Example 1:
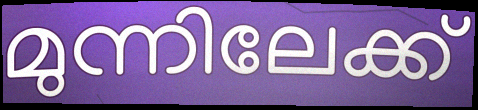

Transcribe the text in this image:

മുന്നിലേക്ക്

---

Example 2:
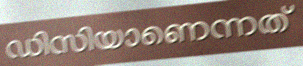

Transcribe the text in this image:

ഡിസിയാണെന്നത്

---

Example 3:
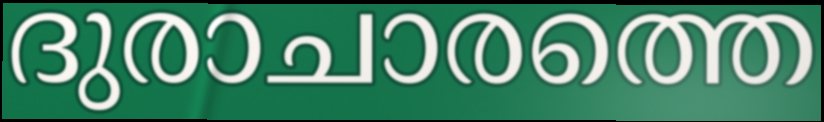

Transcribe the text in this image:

ദുരാചാരത്തെ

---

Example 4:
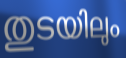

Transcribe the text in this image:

തുടയിലും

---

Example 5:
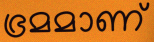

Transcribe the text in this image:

ഭ്രമമാണ്